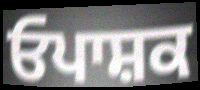
ਓਪਾਸ਼ਕ